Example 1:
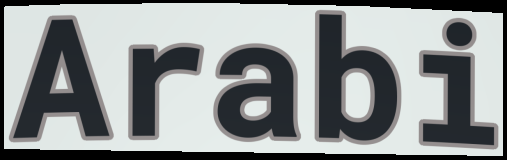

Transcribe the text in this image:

Arabi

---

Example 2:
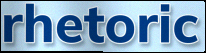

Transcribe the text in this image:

rhetoric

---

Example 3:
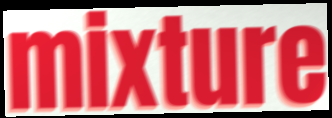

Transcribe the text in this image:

mixture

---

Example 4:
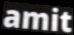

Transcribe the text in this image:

amit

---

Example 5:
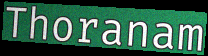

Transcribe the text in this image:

Thoranam